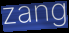
zang